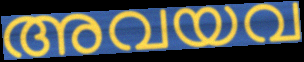
അവയവ